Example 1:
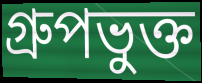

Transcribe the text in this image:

গ্রুপভুক্ত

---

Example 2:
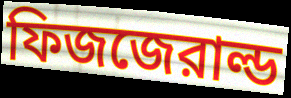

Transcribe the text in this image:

ফিজজেরাল্ড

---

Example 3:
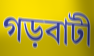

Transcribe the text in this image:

গড়বাটী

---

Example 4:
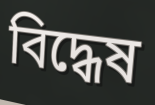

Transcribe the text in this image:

বিদ্ধেষ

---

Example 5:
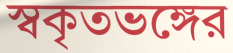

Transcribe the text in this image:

স্বকৃতভঙ্গের